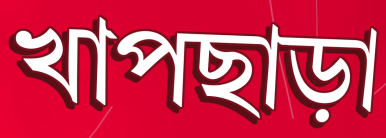
খাপছাড়া